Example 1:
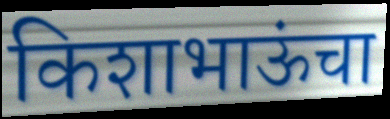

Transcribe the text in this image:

किशाभाऊंचा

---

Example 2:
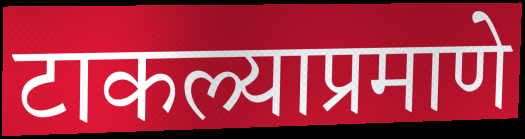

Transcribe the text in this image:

टाकल्याप्रमाणे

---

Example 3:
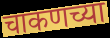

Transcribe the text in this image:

चाकणच्या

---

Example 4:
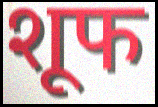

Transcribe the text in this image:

शूफ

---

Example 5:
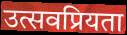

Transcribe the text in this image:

उत्सवप्रियता